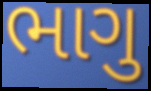
ભાગુ